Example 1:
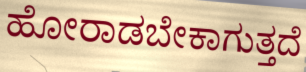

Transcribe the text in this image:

ಹೋರಾಡಬೇಕಾಗುತ್ತದೆ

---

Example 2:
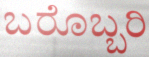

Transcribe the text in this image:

ಬರೊಬ್ಬರಿ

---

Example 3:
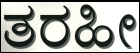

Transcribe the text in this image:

ತರಹೀ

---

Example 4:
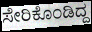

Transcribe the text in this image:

ಸೇರಿಕೊಂಡಿದ್ದ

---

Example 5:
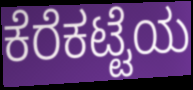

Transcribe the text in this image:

ಕೆರೆಕಟ್ಟೆಯ